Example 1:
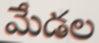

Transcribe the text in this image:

మేడల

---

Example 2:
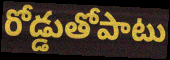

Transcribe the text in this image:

రోడ్డుతోపాటు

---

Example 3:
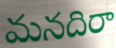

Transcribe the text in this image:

మనదిరా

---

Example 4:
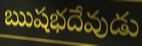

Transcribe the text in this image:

ఋషభదేవుడు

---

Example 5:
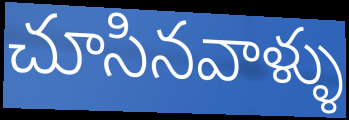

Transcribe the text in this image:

చూసినవాళ్ళు